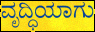
ವೃದ್ಧಿಯಾಗು